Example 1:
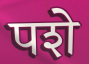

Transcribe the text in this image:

पशे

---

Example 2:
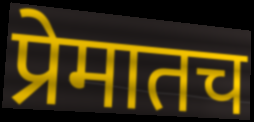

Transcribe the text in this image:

प्रेमातच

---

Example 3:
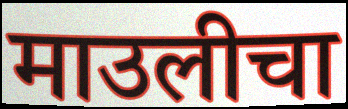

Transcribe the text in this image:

माउलीचा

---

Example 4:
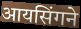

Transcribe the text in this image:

आयसिंगने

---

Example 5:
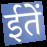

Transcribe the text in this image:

ईतें